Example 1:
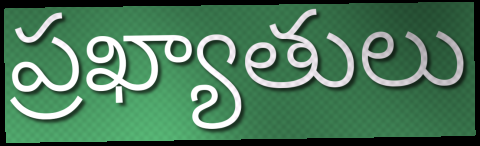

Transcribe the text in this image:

ప్రఖ్యాతులు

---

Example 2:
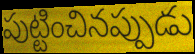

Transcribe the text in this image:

పుట్టించినప్పుడు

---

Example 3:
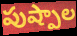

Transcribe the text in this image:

పుష్పాల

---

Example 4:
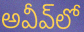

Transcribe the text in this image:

అవీవ్‌లో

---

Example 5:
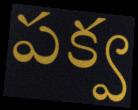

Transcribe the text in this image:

పక్వ